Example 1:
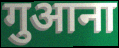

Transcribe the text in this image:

गुआना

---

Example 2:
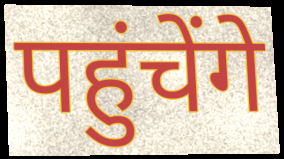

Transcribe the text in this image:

पहुंचेंगे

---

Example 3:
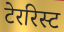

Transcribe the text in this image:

टेररिस्ट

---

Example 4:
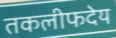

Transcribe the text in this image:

तकलीफदेय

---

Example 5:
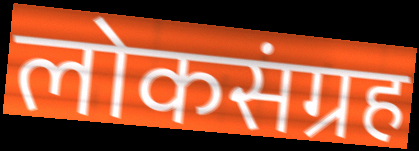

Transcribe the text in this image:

लोकसंग्रह